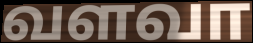
வளவா